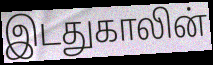
இடதுகாலின்